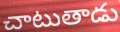
చాటుతాడు